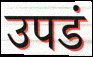
उपडं